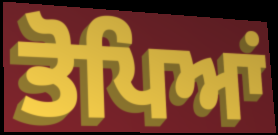
ਤੋਪਿਆਂ